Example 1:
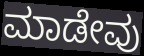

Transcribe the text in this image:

ಮಾಡೇವು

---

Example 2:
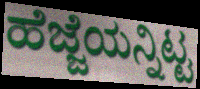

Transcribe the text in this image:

ಹೆಜ್ಜೆಯನ್ನಿಟ್ಟ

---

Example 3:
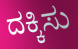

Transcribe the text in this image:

ದಕ್ಕಿಸು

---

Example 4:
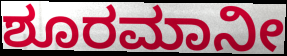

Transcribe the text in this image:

ಶೂರಮಾನೀ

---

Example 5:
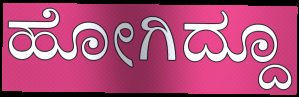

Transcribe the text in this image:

ಹೋಗಿದ್ದೂ